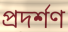
প্ৰদৰ্শণ